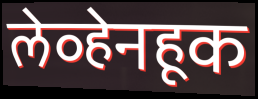
लेव्हेनहूक